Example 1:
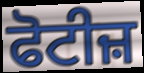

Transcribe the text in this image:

ਫੋਟੀਜ਼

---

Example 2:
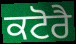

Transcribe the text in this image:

ਕਟੋਰੈ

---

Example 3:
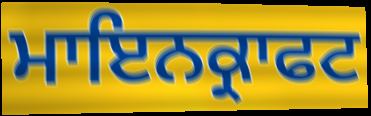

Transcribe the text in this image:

ਮਾਇਨਕ੍ਰਾਫਟ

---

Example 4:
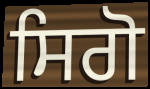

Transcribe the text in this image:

ਸਿਗੋ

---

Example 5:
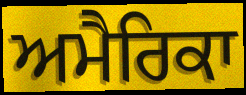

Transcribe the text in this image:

ਅਮੈਰਿਕਾ